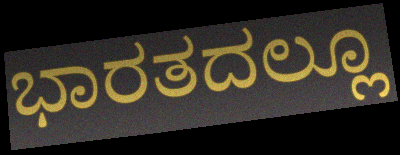
ಭಾರತದಲ್ಲೂ